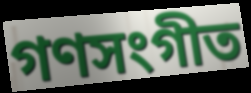
গণসংগীত